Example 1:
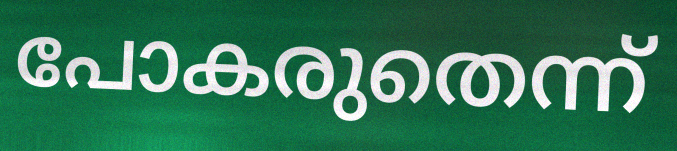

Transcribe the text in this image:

പോകരുതെന്ന്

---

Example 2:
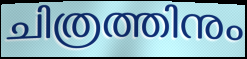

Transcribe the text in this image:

ചിത്രത്തിനും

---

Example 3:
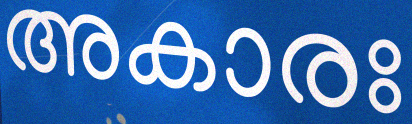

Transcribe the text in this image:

അകാരഃ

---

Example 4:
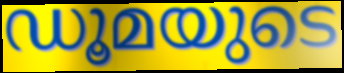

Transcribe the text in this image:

ഡൂമയുടെ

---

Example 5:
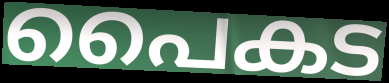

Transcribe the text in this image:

പൈകട